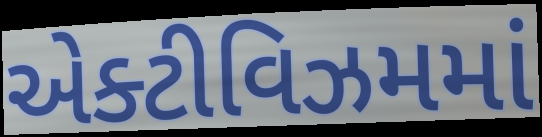
એક્ટીવિઝમમાં